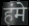
हंमे